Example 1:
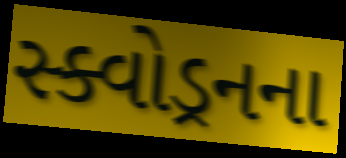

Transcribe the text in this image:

સ્ક્વોડ્રનના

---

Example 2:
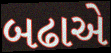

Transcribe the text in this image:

બઢાએ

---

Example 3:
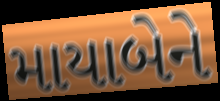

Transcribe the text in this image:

માયાબેને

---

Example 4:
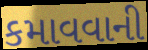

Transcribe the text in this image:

કમાવવાની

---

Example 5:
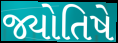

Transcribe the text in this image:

જ્યોતિષે